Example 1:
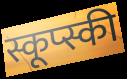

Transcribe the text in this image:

स्कूप्स्की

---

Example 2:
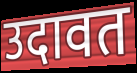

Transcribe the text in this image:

उदावत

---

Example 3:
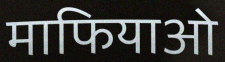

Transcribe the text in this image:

माफियाओ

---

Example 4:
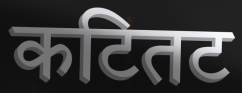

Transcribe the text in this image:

कटितट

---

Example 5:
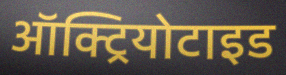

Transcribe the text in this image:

ऑक्ट्रियोटाइड